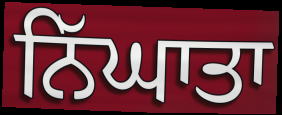
ਨਿੱਘਾਤਾ